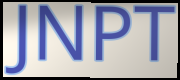
JNPT